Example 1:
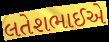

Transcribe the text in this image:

લતેશભાઈએ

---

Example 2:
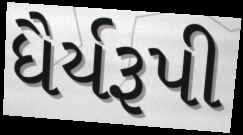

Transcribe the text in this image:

ધૈર્યરૂપી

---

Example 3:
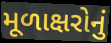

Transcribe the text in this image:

મૂળાક્ષરોનું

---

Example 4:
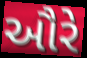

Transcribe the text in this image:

ઔરે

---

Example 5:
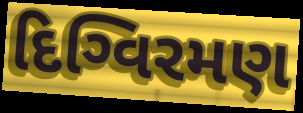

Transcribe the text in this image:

દિગ્વિરમણ